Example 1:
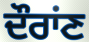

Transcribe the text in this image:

ਦੌਰਾਂਣ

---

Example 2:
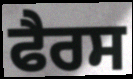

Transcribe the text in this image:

ਫੈਰਸ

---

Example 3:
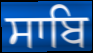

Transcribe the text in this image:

ਸਾਬਿ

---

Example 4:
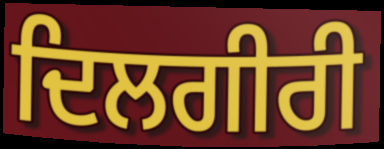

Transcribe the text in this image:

ਦਿਲਗੀਰੀ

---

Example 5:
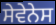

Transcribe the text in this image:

ਸੇਵੇਨੇਸ